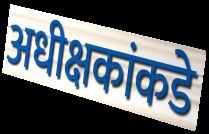
अधीक्षकांकडे